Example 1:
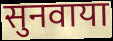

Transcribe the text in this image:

सुनवाया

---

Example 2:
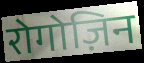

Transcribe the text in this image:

रोगोज़िन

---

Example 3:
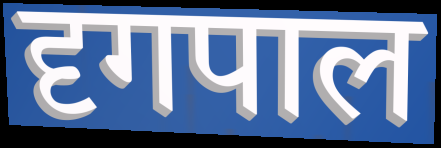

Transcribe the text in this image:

दृगपाल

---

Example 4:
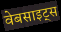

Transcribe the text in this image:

वेबसाइट्स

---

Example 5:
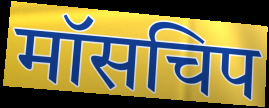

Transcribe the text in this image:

मॉसचिप